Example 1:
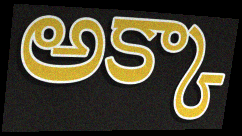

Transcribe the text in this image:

అక్కా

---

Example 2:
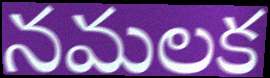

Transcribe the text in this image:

నమలక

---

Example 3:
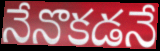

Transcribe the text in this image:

నేనొకడనే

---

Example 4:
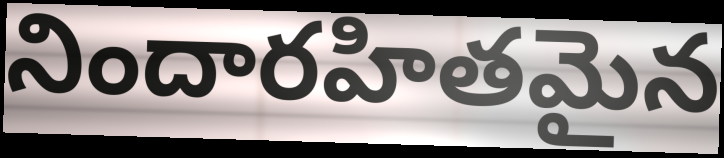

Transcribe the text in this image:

నిందారహితమైన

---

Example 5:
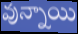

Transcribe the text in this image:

వున్నాయి